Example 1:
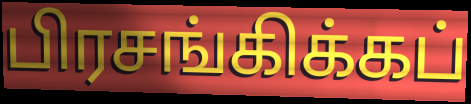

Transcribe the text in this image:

பிரசங்கிக்கப்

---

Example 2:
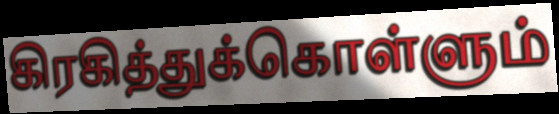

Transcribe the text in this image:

கிரகித்துக்கொள்ளும்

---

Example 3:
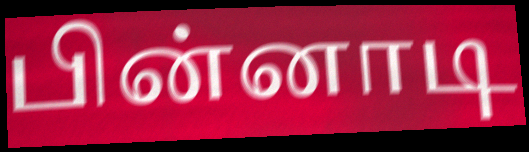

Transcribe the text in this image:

பின்னாடி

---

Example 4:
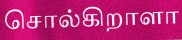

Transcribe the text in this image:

சொல்கிறாளா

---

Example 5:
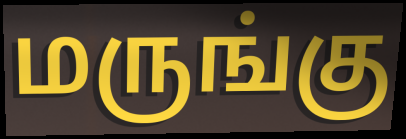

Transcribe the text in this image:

மருங்கு